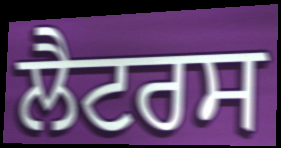
ਲੈਟਰਸ